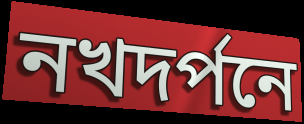
নখদর্পনে